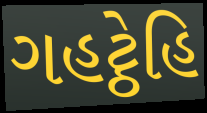
ગહટ્ઠેહિ